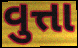
વુત્તા